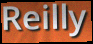
Reilly